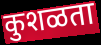
कुशळता